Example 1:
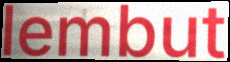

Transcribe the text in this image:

lembut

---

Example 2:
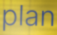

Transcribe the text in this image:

plan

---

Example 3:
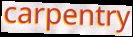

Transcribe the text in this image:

carpentry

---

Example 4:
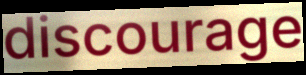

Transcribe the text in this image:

discourage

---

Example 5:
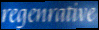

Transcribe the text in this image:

regenrative